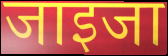
जाइजा